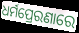
ଧର୍ମପ୍ରେରଣାରେ